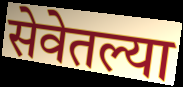
सेवेतल्या